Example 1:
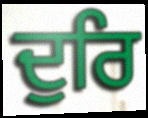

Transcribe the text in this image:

ਦੁਰਿ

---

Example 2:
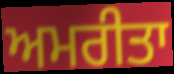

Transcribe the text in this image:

ਅਮਰੀਤਾ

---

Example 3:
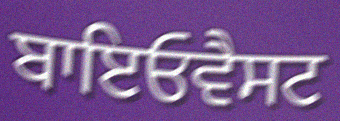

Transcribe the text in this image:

ਬਾਇਓਵੈਸਟ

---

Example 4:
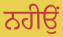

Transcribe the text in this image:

ਨਹੀਉਂ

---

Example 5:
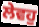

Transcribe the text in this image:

ਲੇਵਹੁ